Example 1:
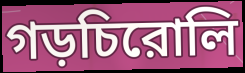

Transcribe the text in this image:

গড়চিরোলি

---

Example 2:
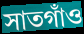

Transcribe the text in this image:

সাতগাঁও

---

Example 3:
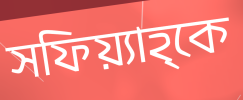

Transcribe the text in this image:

সফিয়্যাহ্কে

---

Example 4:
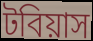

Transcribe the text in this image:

টবিয়াস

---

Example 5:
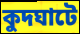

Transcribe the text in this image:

কুদঘাটে